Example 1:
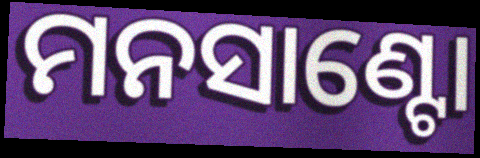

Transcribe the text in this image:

ମନସାଣ୍ଟୋ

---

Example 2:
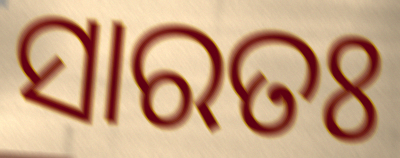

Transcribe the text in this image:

ସାରତଃ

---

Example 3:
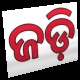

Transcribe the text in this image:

ଜଡ଼ି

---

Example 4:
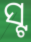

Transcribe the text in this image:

ସ୍ଟ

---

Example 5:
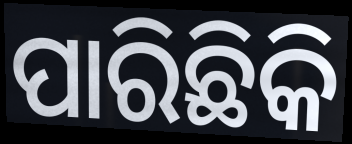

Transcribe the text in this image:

ପାରିଛିକି